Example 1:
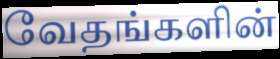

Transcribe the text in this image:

வேதங்களின்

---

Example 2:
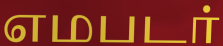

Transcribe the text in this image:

எமபடர்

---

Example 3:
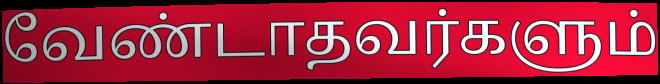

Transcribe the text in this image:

வேண்டாதவர்களும்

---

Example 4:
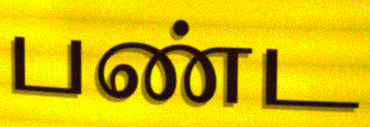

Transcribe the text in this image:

பண்ட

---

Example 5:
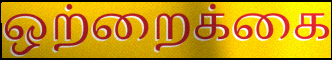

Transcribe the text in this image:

ஒற்றைக்கை